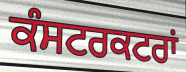
ਕੰਸਟਰਕਟਰਾਂ